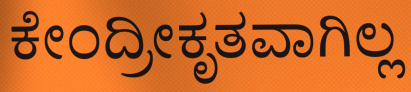
ಕೇಂದ್ರೀಕೃತವಾಗಿಲ್ಲ